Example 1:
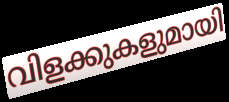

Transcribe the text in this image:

വിളക്കുകളുമായി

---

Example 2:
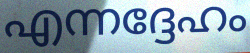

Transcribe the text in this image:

എന്നദ്ദേഹം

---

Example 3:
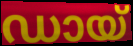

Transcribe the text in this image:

ഡായ്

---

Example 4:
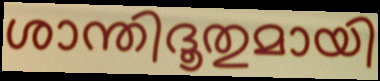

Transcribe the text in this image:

ശാന്തിദൂതുമായി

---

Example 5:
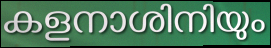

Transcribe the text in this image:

കളനാശിനിയും